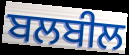
ਬਲਬੀਲ